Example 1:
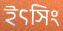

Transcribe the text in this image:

ইৎসিং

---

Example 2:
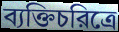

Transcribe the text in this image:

ব্যক্তিচরিত্রে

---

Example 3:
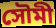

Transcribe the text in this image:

সৌমী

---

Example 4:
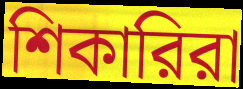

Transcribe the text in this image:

শিকারিরা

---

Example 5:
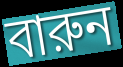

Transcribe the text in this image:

বারুন